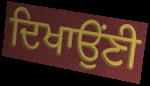
ਦਿਖਾਉਂਣੀ